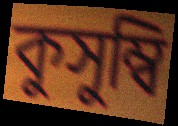
কুসুম্বি